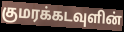
குமரக்கடவுளின்